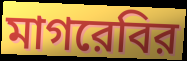
মাগরেবির